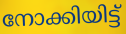
നോക്കിയിട്ട്